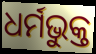
ଧର୍ମଭୁକ୍ତ